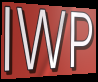
IWP